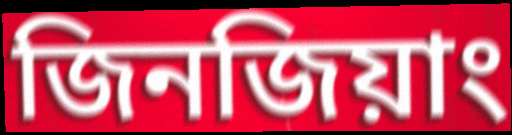
জিনজিয়াং